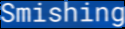
Smishing